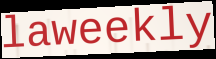
laweekly